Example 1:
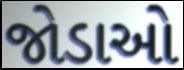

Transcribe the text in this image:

જોડાઓ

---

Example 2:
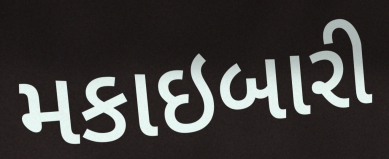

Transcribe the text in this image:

મકાઇબારી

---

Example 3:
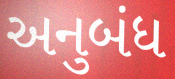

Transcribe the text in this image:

અનુબંધ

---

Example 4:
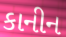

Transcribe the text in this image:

કાનીન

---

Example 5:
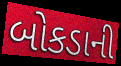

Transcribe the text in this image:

બોકડાની